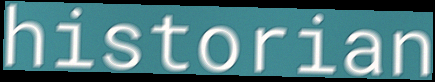
historian